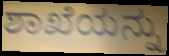
ಶಾಖೆಯನ್ನು